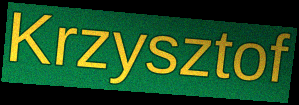
Krzysztof